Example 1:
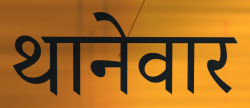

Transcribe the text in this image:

थानेवार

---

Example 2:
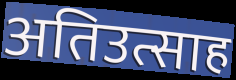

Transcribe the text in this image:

अतिउत्साह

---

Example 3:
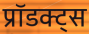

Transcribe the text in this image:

प्रॉडक्ट्स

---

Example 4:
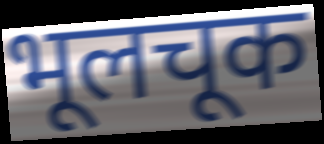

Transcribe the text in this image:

भूलचूक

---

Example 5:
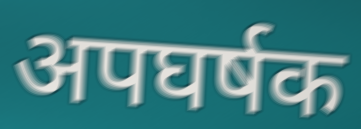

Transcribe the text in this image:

अपघर्षक